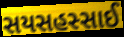
સયસહસ્સાઈ